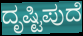
ದೃಷ್ಟಿಪುದೆ